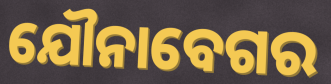
ଯୌନାବେଗର